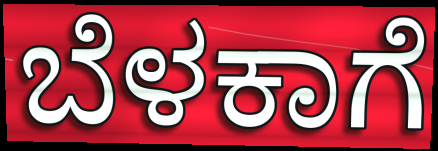
ಬೆಳಕಾಗೆ